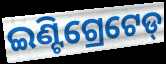
ଇଣ୍ଟିଗ୍ରେଟେଡ୍